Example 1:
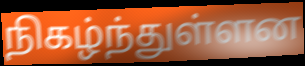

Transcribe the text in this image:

நிகழ்ந்துள்ளன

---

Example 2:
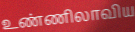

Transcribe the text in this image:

உண்ணிலாவிய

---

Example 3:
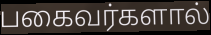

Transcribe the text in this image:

பகைவர்களால்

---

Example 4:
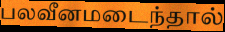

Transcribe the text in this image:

பலவீனமடைந்தால்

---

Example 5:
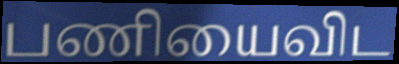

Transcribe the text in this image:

பணியைவிட